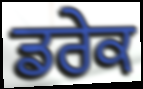
ਡਰੇਕ